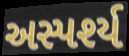
અસ્પર્શ્ય